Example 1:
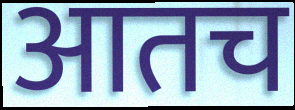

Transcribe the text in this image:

आतच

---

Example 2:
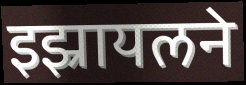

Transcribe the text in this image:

इझ्रायलने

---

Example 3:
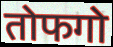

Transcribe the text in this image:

तोफगो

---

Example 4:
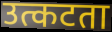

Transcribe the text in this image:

उत्कटता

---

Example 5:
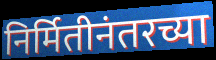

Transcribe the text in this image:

निर्मितीनंतरच्या